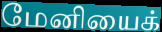
மேனியைக்